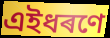
এইধৰণে